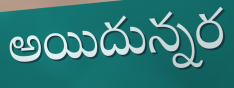
అయిదున్నర